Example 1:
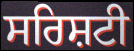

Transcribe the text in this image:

ਸਰਿਸ਼ਟੀ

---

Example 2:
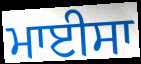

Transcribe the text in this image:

ਮਾਈਸਾ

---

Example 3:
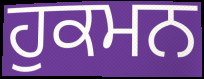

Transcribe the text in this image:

ਹੁਕਮਨ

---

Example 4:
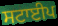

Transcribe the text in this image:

ਸਟਾਈਪ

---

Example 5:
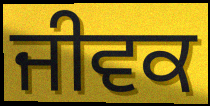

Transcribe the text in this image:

ਜੀਵਕ